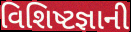
વિશિષ્ટજ્ઞાની